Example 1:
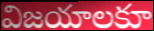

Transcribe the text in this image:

విజయాలకూ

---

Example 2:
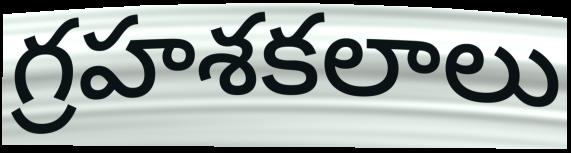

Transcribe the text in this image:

గ్రహశకలాలు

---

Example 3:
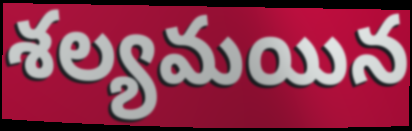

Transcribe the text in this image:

శల్యమయిన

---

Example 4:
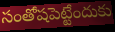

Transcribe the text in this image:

సంతోషపెట్టేందుకు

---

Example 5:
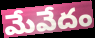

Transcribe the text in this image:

మేవేదం